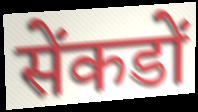
सेंकडों